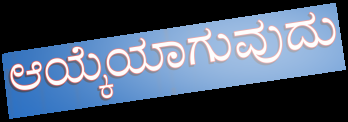
ಆಯ್ಕೆಯಾಗುವುದು